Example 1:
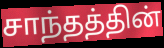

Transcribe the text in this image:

சாந்தத்தின்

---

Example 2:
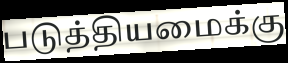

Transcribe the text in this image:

படுத்தியமைக்கு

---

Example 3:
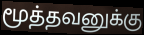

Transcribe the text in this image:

மூத்தவனுக்கு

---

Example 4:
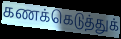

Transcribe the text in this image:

கணக்கெடுத்துக்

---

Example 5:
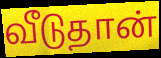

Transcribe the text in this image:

வீடுதான்